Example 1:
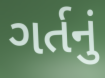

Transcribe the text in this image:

ગર્તનું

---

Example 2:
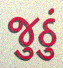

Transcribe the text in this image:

જુઠું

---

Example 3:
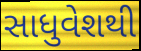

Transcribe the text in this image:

સાધુવેશથી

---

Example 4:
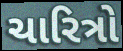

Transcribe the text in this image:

ચારિત્રો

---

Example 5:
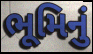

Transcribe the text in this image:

ભૂમિનું